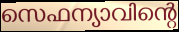
സെഫന്യാവിന്റെ